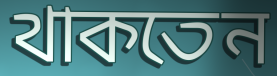
থাকতেন